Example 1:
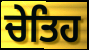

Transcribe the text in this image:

ਚੇਤਿਹ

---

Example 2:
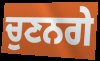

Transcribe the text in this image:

ਚੁਣਨਗੇ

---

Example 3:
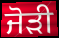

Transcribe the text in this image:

ਜੋੜੀ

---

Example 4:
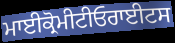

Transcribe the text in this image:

ਮਾਈਕ੍ਰੋਮੀਟੀਓਰਾਈਟਸ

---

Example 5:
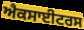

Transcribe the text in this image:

ਐਕਸਾਈਟਰਸ